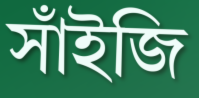
সাঁইজি